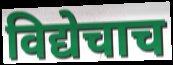
विद्येचाच